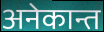
अनेकान्त